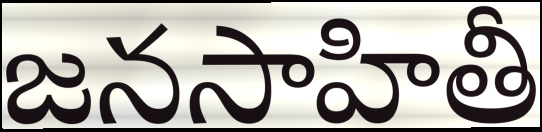
జనసాహితీ